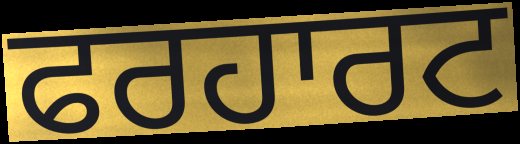
ਫਰਹਾਰਟ